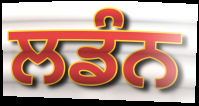
ਲਡੰਨ